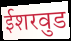
ईशरवुड